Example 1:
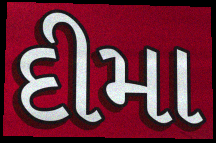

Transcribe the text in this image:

દીમા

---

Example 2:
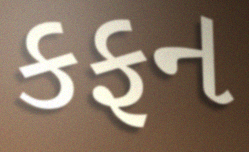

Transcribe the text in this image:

કફન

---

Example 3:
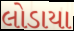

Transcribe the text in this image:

લોડાયા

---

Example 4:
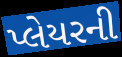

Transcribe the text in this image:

પ્લેયરની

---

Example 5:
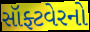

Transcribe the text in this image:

સૉફ્ટવેરનો